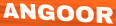
ANGOOR